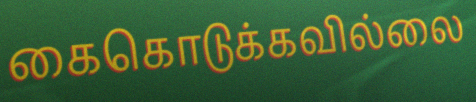
கைகொடுக்கவில்லை